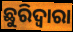
ଛୁରିଦ୍ୱାରା